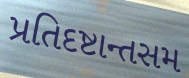
પ્રતિદષ્ટાન્તસમ